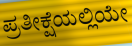
ಪ್ರತೀಕ್ಷೆಯಲ್ಲಿಯೇ